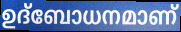
ഉദ്ബോധനമാണ്